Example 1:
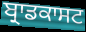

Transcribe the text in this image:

ਬ੍ਰਾਡਕਾਸਟ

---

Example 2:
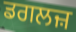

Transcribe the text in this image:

ਡਗਲਜ਼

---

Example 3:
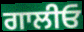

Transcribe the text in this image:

ਗਾਲੀਓ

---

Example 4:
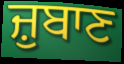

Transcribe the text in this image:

ਜ਼ੁਬਾਣ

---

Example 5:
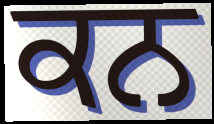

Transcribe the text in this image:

ਕਨ